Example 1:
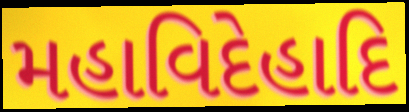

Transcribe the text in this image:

મહાવિદેહાદિ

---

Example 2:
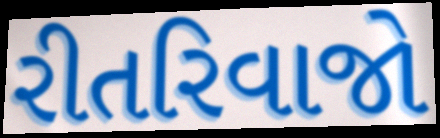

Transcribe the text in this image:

રીતરિવાજો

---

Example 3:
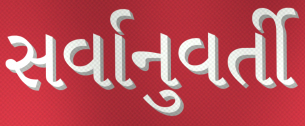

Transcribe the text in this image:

સર્વાનુવર્તી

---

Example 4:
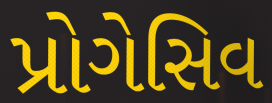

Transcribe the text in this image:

પ્રોગેસિવ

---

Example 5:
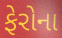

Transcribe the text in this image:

ફેરોના